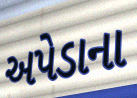
અપેડાના